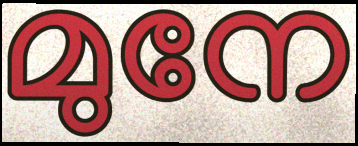
മുനേ